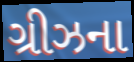
ગ્રીઝના